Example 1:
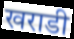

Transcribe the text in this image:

खराडी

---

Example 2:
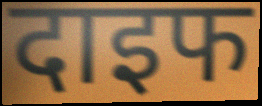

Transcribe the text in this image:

दाइफ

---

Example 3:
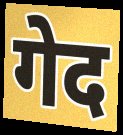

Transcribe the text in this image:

गेद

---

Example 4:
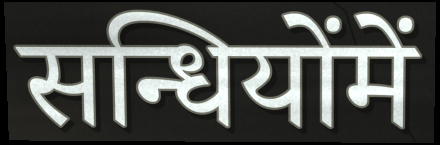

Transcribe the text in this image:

सन्धियोंमें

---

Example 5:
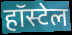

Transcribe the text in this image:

हॉस्टेल